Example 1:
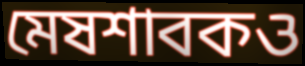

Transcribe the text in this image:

মেষশাবকও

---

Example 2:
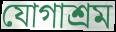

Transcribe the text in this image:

যোগাশ্রম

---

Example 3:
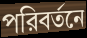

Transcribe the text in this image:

পরিবর্তনে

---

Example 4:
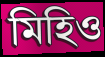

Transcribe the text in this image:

মিহিও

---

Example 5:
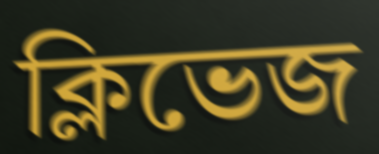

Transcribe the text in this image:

ক্লিভেজ